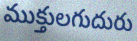
ముక్తులగుదురు